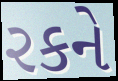
રકને